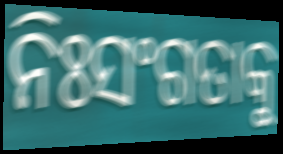
ନିଃସଂଗତାକୁ